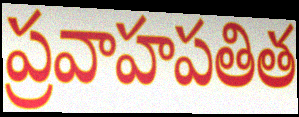
ప్రవాహపతిత